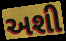
અશી